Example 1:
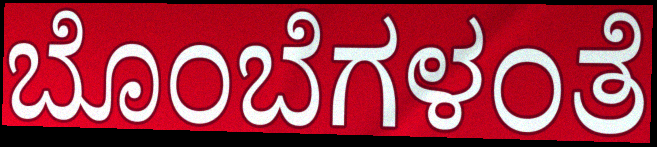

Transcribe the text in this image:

ಬೊಂಬೆಗಳಂತೆ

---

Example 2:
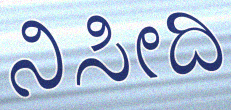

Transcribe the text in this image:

ನಿಸೀದಿ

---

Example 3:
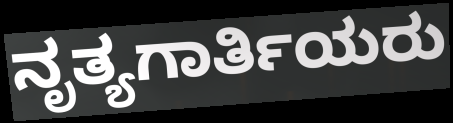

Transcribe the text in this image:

ನೃತ್ಯಗಾರ್ತಿಯರು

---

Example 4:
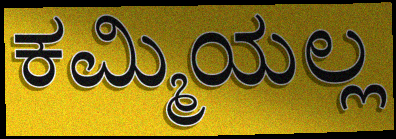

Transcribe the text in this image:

ಕಮ್ಮಿಯಲ್ಲ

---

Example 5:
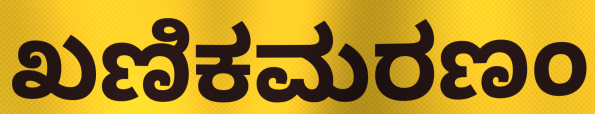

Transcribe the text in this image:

ಖಣಿಕಮರಣಂ